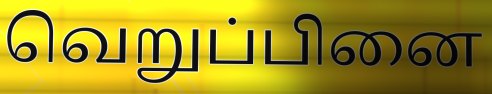
வெறுப்பினை